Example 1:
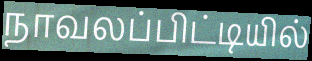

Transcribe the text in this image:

நாவலப்பிட்டியில்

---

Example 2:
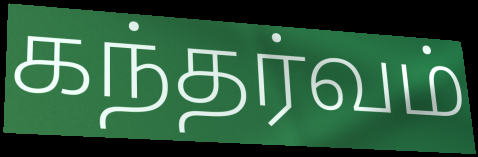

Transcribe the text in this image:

கந்தர்வம்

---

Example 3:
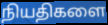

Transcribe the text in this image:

நியதிகளை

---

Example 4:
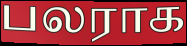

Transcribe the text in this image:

பலராக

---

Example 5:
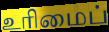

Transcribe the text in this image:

உரிமைப்